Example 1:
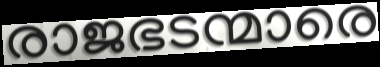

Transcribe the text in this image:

രാജഭടന്മാരെ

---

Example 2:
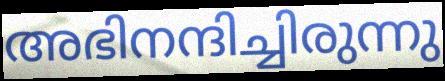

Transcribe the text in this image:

അഭിനന്ദിച്ചിരുന്നു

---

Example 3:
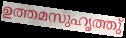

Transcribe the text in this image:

ഉത്തമസുഹൃത്തു്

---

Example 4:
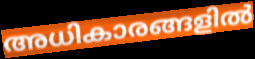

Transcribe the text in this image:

അധികാരങ്ങളിൽ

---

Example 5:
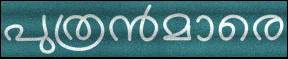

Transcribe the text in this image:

പുത്രൻമാരെ